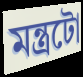
মন্ত্ৰটো